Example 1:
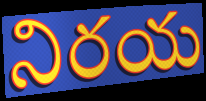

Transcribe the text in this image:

నిరయ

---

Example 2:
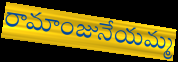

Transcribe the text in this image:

రామాంజునేయమ్మ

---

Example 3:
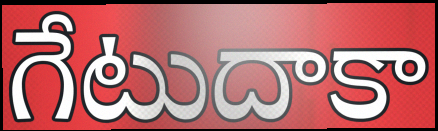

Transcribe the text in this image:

గేటుదాకా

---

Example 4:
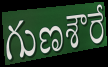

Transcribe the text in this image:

గుణశౌరే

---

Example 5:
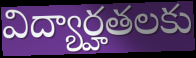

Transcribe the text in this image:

విద్యార్హతలకు